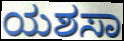
ಯಶಸಾ